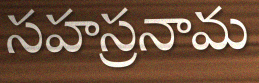
సహస్రనామ